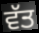
ਵੱਤ